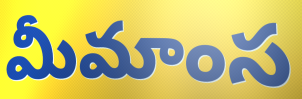
మీమాంస